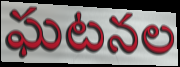
ఘటనల